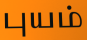
புயம்